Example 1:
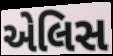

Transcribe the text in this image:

એલિસ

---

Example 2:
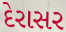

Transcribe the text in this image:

દેરાસર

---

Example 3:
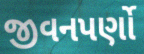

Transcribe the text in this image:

જીવનપર્ણો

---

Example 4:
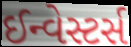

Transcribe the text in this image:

ઈન્વેસ્ટર્સ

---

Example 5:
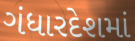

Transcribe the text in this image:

ગંધારદેશમાં